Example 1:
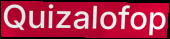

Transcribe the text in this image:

Quizalofop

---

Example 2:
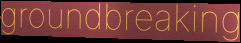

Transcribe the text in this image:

groundbreaking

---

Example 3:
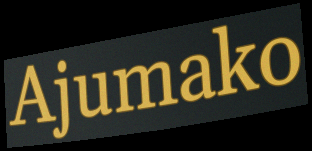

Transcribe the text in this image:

Ajumako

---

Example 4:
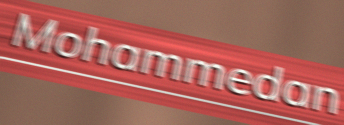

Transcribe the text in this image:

Mohammedan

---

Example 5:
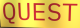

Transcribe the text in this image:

QUEST